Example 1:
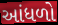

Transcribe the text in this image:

આંધળો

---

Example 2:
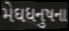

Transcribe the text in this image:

મેઘધનુષના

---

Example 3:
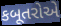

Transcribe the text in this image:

કબૂતરોએ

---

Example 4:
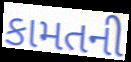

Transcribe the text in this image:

કામતની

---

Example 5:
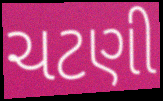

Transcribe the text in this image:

ચટણી